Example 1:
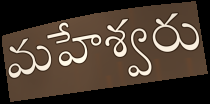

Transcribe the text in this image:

మహేశ్వరు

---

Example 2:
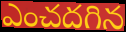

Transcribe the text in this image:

ఎంచదగిన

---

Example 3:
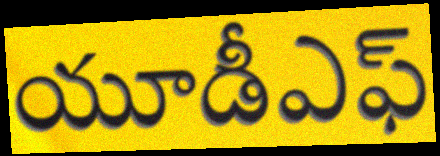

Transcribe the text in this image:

యూడీఎఫ్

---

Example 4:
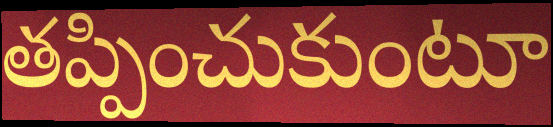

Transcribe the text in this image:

తప్పించుకుంటూ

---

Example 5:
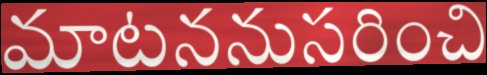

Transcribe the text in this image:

మాటననుసరించి